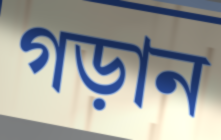
গড়ান